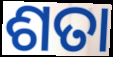
ଶତା